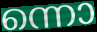
ന്നൊ